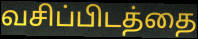
வசிப்பிடத்தை